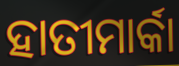
ହାତୀମାର୍କା